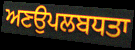
ਅਣਉਪਲਬਧਤਾ